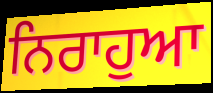
ਨਿਰਾਹੁਆ